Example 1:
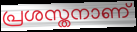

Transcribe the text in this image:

പ്രശസ്തനാണ്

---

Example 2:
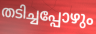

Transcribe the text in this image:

തടിച്ചപ്പോഴും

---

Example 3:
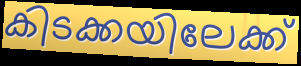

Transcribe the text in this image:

കിടക്കയിലേക്ക്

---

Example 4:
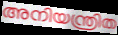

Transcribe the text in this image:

അനിയന്ത്രിത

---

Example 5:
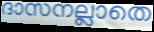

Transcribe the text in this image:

ദാസനല്ലാതെ